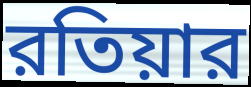
রতিয়ার